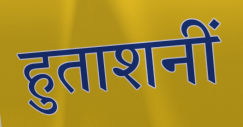
हुताशनीं